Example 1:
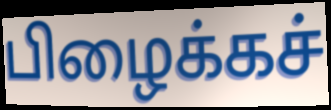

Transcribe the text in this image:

பிழைக்கச்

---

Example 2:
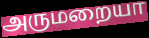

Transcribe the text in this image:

அருமறையா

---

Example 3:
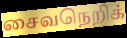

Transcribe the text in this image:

சைவநெறிக்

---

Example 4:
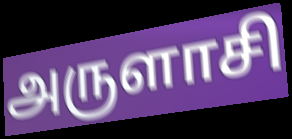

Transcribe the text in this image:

அருளாசி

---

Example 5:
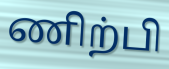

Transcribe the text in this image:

ணிற்பி